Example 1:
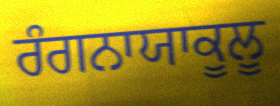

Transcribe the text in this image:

ਰੰਗਨਾਯਾਕੂਲੂ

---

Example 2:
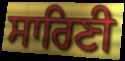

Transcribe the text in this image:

ਸਾਰਿਣੀ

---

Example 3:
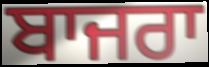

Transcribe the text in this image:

ਬਾਜਰਾ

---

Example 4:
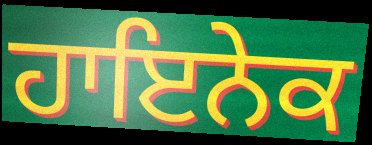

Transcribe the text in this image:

ਹਾਇਨੇਕ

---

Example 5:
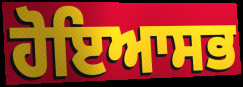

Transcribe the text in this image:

ਹੋਇਆਸਭ